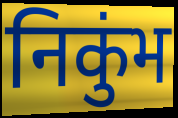
निकुंभ